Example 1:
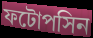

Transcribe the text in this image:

ফটোপসিন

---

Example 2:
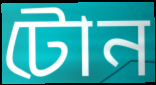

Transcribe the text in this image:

টোন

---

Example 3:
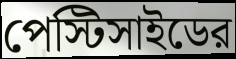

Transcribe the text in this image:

পেস্টিসাইডের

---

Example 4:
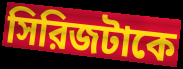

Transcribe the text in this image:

সিরিজটাকে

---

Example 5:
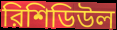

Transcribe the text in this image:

রিশিডিউল